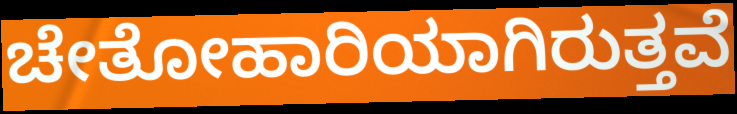
ಚೇತೋಹಾರಿಯಾಗಿರುತ್ತವೆ